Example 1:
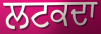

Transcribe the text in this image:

ਲਟਕਦਾ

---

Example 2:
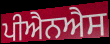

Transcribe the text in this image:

ਪੀਐਨਐਸ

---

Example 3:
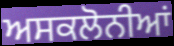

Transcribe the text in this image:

ਅਸਕਲੋਨੀਆਂ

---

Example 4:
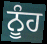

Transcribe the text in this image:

ਨੂੰਹ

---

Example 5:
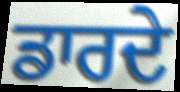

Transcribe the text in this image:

ਡਾਰਦੇ